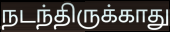
நடந்திருக்காது